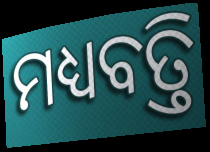
ମଧ୍ୟବତ୍ତି